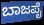
ಬಾಜಪೈ